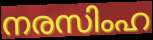
നരസിംഹ